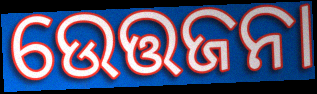
ଉେତ୍ତଜନା